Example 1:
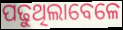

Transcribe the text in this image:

ପଢୁଥିଲାବେଳେ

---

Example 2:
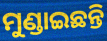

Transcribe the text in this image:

ମୁଣ୍ଡାଇଛନ୍ତି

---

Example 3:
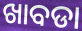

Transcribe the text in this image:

ଖାବଡା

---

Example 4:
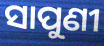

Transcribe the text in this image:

ସାପୁଣୀ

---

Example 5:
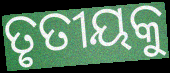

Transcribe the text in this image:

ତୃତୀୟକୁ